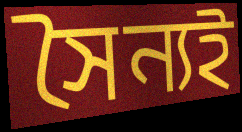
সৈন্যই